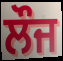
ਲੌਜ